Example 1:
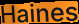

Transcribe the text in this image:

Haines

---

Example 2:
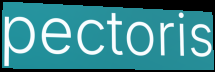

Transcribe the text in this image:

pectoris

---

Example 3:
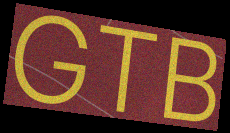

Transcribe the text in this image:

GTB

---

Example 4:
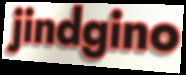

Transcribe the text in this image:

jindgino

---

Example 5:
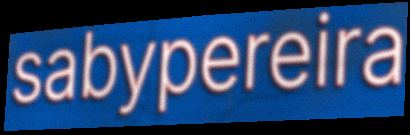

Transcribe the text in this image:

sabypereira